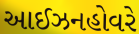
આઈઝનહોવરે